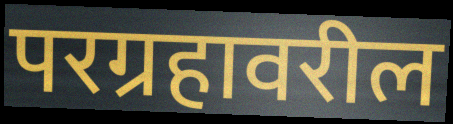
परग्रहावरील